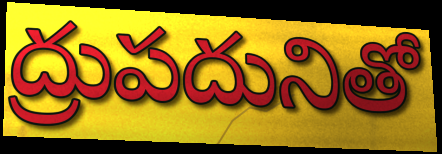
ద్రుపదునితో